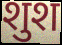
शुश